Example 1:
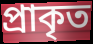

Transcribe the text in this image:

প্রাকৃত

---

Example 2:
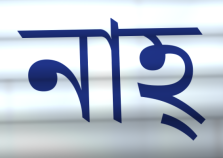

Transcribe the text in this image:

নাহ্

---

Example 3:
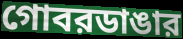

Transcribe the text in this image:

গোবরডাঙার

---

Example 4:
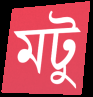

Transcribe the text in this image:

মটু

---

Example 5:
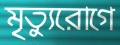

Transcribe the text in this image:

মৃত্যুরোগে